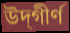
উদ্‌গীর্ণ